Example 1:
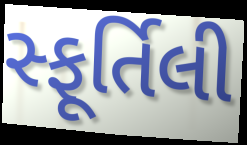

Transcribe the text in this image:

સ્ફૂર્તિલી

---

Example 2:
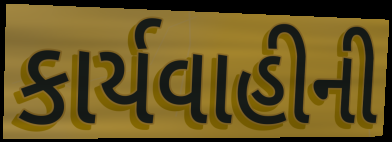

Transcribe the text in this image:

કાર્યવાહીની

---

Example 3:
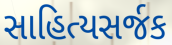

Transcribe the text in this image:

સાહિત્યસર્જક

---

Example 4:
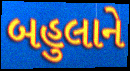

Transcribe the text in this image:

બહુલાને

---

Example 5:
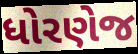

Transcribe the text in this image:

ધોરણેજ